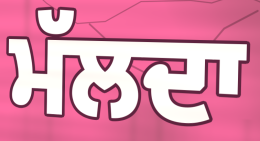
ਮੱਲਦਾ